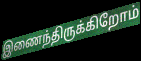
இணைந்திருக்கிறோம்